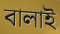
বালাই